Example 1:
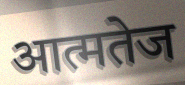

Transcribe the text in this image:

आत्मतेज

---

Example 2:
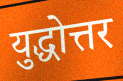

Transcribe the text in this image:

युद्धोत्तर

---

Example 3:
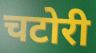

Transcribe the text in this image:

चटोरी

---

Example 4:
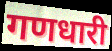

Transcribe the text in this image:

गणधारी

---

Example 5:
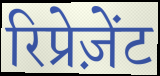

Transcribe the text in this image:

रिप्रेज़ेंट